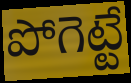
పోగెట్టే